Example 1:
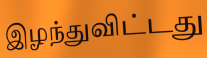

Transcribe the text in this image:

இழந்துவிட்டது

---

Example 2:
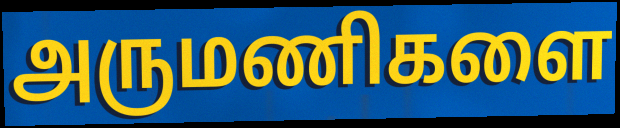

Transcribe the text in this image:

அருமணிகளை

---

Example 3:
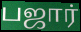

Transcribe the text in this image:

பஜார்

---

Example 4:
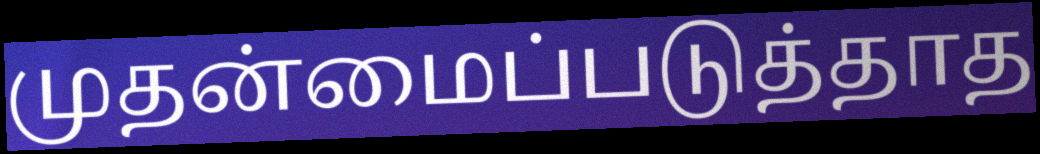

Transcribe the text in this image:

முதன்மைப்படுத்தாத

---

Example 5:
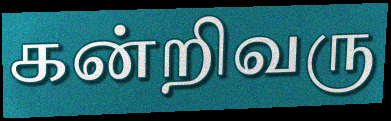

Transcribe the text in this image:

கன்றிவரு